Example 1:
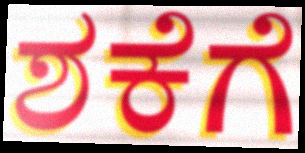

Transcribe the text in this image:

ಶಕೆಗೆ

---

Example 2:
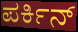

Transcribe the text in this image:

ಪರ್ಕಿನ್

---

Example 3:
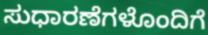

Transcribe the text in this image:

ಸುಧಾರಣೆಗಳೊಂದಿಗೆ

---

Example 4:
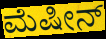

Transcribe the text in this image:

ಮೆಷೀನ್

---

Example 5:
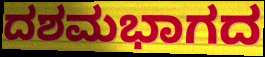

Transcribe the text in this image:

ದಶಮಭಾಗದ